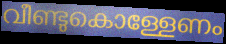
വീണ്ടുകൊള്ളേണം